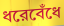
ধরেবেঁধে